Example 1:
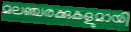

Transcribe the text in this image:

മലഞ്ചരക്കുകളുമായി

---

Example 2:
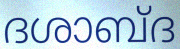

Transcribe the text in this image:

ദശാബ്ദ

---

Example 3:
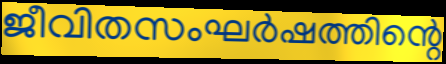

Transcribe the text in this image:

ജീവിതസംഘർഷത്തിന്റെ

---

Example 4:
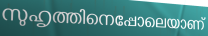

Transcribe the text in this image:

സുഹൃത്തിനെപ്പോലെയാണ്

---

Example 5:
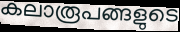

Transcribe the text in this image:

കലാരൂപങ്ങളുടെ